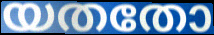
യതതോ